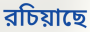
রচিয়াছে